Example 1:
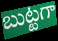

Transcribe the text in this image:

బుట్టగా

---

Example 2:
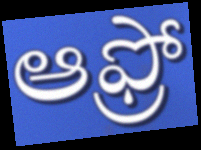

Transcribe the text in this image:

ఆఫ్రో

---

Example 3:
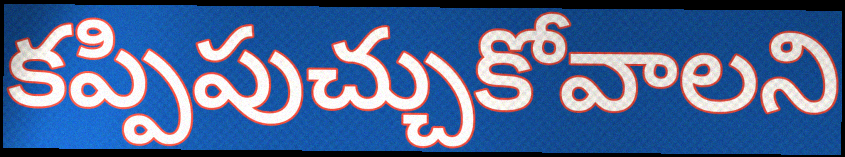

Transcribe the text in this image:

కప్పిపుచ్చుకోవాలని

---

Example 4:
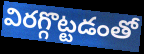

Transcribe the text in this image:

విరగ్గొట్టడంతో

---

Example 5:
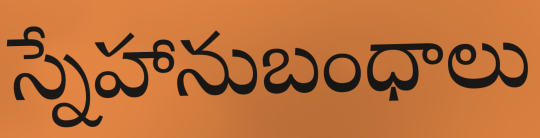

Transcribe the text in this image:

స్నేహానుబంధాలు